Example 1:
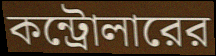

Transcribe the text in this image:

কন্ট্রোলারের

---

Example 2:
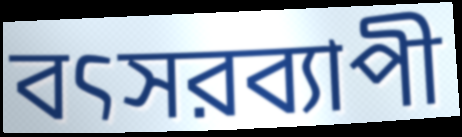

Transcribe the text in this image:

বৎসরব্যাপী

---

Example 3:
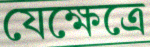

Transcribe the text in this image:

যেক্ষেত্রে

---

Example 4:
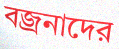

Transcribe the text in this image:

বজ্রনাদের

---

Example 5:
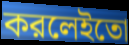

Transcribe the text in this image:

করলেইতো